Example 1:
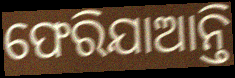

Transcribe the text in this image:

ଫେରିଯାଆନ୍ତି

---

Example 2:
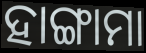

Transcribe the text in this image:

ହାଙ୍ଗାମା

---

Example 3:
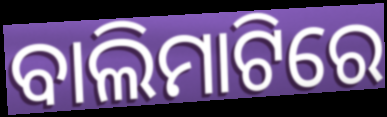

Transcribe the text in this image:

ବାଲିମାଟିରେ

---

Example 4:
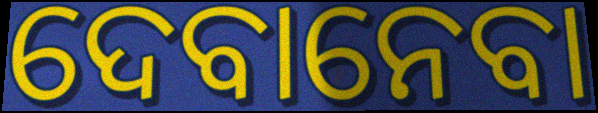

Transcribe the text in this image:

ଦେବାନେବା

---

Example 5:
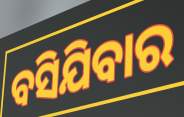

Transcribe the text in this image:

ବସିଯିବାର